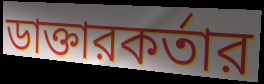
ডাক্তারকর্তার